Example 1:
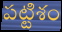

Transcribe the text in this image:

పట్టిశం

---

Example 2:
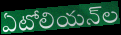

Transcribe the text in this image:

ఏటోలియన్‌ల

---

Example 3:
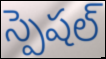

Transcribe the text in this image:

స్పెషల్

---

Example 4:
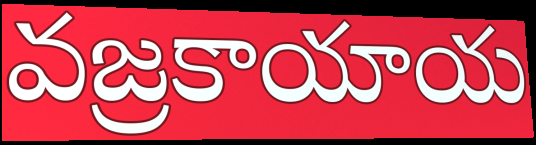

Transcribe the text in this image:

వజ్రకాయాయ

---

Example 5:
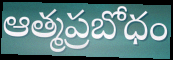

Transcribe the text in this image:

ఆత్మప్రబోధం